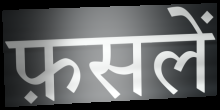
फ़सलें